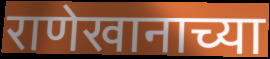
राणेखानाच्या